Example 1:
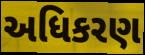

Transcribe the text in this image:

અધિકરણ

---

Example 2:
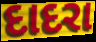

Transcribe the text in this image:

દાદરા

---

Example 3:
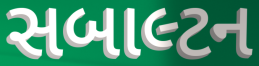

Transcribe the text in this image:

સબાલ્ટન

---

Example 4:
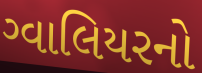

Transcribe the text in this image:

ગ્વાલિયરનો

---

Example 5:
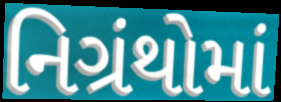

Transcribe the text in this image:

નિગ્રંથોમાં